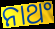
ନାଥଂ